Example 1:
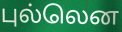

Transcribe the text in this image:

புல்லென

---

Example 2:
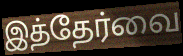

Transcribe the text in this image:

இத்தேர்வை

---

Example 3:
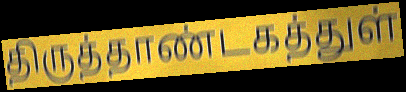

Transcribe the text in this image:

திருத்தாண்டகத்துள்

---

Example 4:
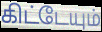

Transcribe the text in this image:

கிட்டேயும்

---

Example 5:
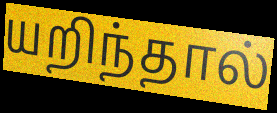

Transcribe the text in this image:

யறிந்தால்